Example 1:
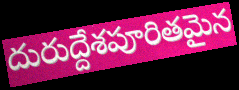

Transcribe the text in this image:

దురుద్దేశపూరితమైన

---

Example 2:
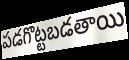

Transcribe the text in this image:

పడగొట్టబడతాయి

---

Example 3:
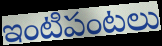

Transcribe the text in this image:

ఇంటిపంటలు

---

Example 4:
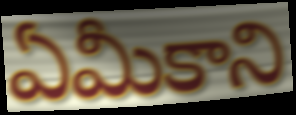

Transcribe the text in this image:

ఏమీకాని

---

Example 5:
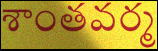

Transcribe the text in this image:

శాంతవర్మ